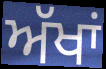
ਅੱਖਾਂ